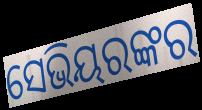
ସେଭିୟରଙ୍କର